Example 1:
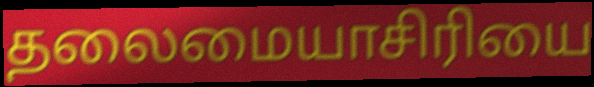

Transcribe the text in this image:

தலைமையாசிரியை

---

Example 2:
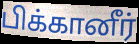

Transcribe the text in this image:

பிக்கானீர்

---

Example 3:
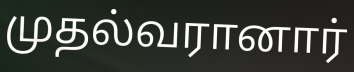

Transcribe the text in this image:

முதல்வரானார்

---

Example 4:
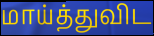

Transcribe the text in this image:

மாய்த்துவிட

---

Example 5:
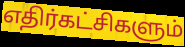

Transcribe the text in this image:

எதிர்கட்சிகளும்